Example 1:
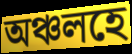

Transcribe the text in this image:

অঞ্চলহে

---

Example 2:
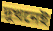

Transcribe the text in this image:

দুখনেই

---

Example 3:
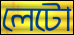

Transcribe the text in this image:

লেটো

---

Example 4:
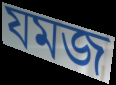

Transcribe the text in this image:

যমজ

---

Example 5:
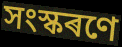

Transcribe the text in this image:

সংস্কৰণে